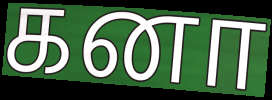
கனா